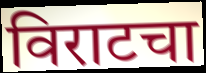
विराटचा